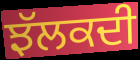
ਝੱਲਕਦੀ